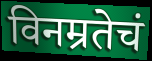
विनम्रतेचं